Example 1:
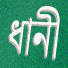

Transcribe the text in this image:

ধানী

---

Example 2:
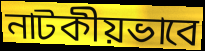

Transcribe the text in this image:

নাটকীয়ভাবে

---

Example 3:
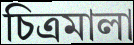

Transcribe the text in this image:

চিত্রমালা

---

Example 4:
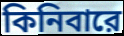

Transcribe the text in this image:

কিনিবারে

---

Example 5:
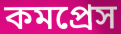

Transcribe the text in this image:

কমপ্রেস